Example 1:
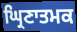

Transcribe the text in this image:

ਘ੍ਰਿਣਾਤਮਕ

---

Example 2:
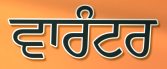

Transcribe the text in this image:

ਵਾਰੰਟਰ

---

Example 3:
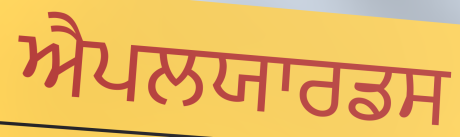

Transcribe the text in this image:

ਐਪਲਯਾਰਡਸ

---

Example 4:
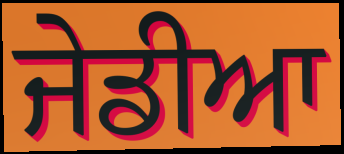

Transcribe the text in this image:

ਜੇਡੀਆ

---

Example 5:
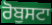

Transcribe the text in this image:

ਰੋਬੁਸਟਾ